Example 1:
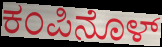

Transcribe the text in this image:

ಕಂಪಿನೊಳ್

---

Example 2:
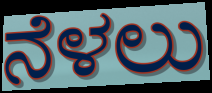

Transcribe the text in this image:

ನೆಳಲು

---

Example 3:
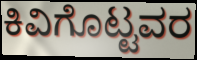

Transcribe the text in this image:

ಕಿವಿಗೊಟ್ಟವರ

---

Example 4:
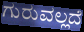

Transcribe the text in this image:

ಗುರುವಲ್ಲದೆ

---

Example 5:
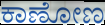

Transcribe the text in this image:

ಕಾಣೋಣ